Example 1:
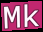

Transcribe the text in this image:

Mk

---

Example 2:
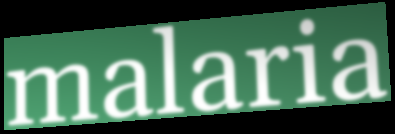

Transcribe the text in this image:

malaria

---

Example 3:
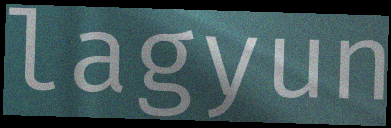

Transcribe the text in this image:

lagyun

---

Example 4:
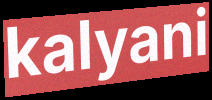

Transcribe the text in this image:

kalyani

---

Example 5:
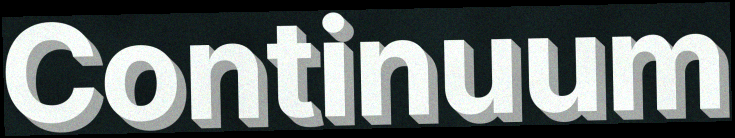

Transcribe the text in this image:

Continuum